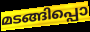
മടങ്ങിപ്പൊ